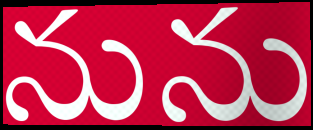
నును